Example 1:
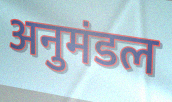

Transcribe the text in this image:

अनुमंडल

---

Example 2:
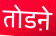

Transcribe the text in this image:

तोडऩे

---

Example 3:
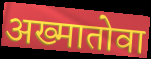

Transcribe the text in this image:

अख्मातोवा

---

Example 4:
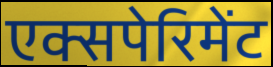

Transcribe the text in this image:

एक्सपेरिमेंट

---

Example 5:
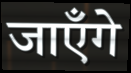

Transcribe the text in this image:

जाएँगे